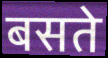
बसते